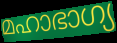
മഹാഭാഗ്യ